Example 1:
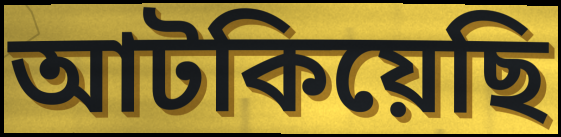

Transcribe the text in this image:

আটকিয়েছি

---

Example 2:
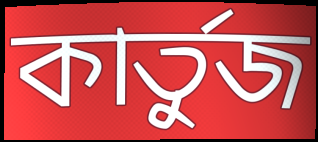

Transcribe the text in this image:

কার্তুজ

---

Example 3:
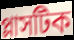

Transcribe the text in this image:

প্লাসটিক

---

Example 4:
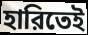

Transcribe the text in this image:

হারিতেই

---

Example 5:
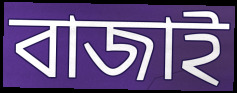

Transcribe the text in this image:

বাজাই